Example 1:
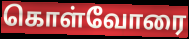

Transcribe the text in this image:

கொள்வோரை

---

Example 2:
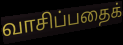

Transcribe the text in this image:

வாசிப்பதைக்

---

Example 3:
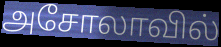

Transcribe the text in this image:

அசோலாவில்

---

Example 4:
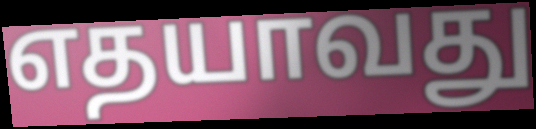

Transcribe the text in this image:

எதயாவது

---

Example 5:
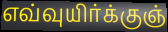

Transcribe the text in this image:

எவ்வுயிர்க்குஞ்